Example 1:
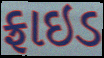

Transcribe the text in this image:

ફ્રાઇડ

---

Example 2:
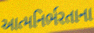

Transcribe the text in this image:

આત્મનિર્ભરતાના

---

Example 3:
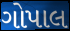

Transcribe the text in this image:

ગોપાલ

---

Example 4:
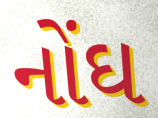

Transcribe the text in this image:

નોંઘ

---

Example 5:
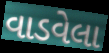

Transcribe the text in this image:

વાડવેલા